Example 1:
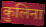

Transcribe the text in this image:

कुलिना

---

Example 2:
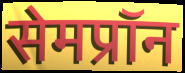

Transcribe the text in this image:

सेमप्रॉन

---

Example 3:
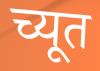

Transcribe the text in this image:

च्यूत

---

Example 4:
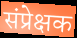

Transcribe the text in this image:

संप्रेक्षक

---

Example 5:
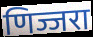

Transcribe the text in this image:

णिज्जरा